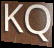
KQ